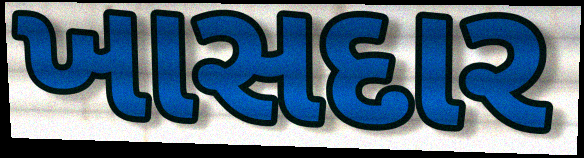
ખાસદાર